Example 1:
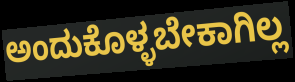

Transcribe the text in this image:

ಅಂದುಕೊಳ್ಳಬೇಕಾಗಿಲ್ಲ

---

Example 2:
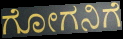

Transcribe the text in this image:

ಗೋಗನಿಗೆ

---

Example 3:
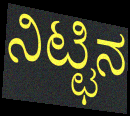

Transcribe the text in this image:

ನಿಟ್ಟಿನ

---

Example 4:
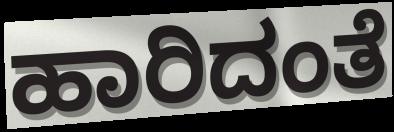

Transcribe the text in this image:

ಹಾರಿದಂತೆ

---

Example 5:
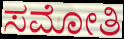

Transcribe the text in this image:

ಸಮೋತಿ